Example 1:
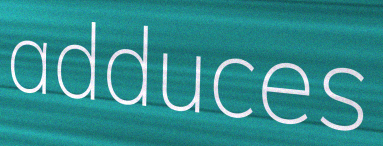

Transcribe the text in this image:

adduces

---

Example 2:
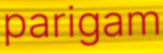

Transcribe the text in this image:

parigam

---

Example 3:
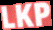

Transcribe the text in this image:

LKP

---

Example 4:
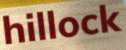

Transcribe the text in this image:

hillock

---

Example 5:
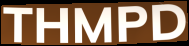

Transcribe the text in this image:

THMPD